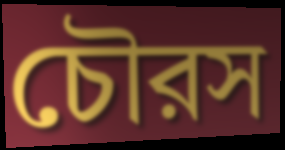
চৌরস